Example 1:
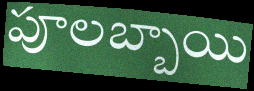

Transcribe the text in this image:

పూలబ్బాయి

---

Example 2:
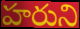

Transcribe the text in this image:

హరుని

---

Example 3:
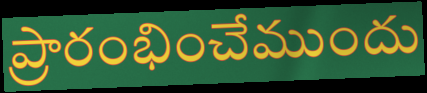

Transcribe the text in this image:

ప్రారంభించేముందు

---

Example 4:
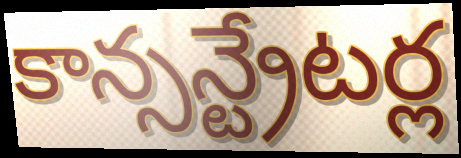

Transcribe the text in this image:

కాన్సన్ట్రేటర్ల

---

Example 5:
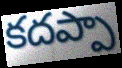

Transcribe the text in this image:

కదప్పా